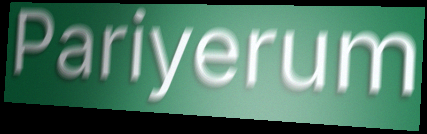
Pariyerum